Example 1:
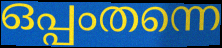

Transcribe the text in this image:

ഒപ്പംതന്നെ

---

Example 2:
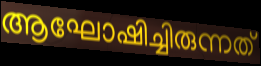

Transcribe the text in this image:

ആഘോഷിച്ചിരുന്നത്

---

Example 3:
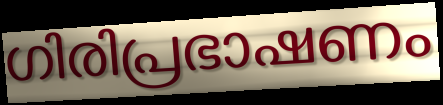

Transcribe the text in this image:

ഗിരിപ്രഭാഷണം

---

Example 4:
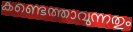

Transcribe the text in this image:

കണ്ടെത്താവുന്നതും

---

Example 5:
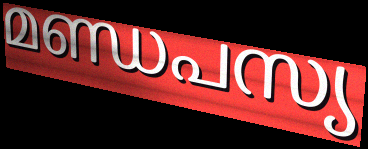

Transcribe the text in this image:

മണ്ഡപസ്യ